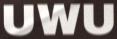
UWU